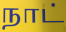
நாட்